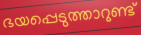
ഭയപ്പെടുത്താറുണ്ട്